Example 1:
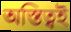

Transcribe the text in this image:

অস্তিত্বই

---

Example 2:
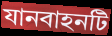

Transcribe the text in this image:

যানবাহনটি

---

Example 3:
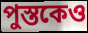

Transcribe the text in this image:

পুস্তকেও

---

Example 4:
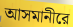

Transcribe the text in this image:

আসমানীরে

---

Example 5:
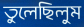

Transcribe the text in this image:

তুলেছিলুম